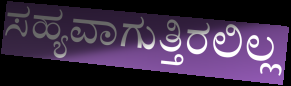
ಸಹ್ಯವಾಗುತ್ತಿರಲಿಲ್ಲ